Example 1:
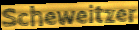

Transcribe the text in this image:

Scheweitzer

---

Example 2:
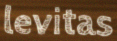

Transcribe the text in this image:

levitas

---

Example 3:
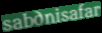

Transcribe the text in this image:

sabdnisafar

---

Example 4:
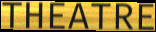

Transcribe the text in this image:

THEATRE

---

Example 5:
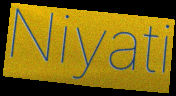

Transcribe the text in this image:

Niyati